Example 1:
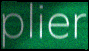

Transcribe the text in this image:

plier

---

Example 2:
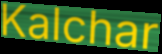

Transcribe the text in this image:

Kalchar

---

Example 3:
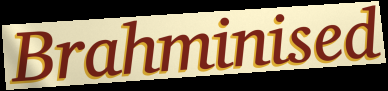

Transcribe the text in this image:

Brahminised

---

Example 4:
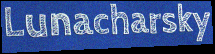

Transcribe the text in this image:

Lunacharsky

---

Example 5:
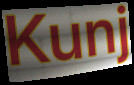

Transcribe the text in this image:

Kunj